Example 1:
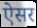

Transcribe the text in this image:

ऐसर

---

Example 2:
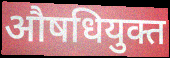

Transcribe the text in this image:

औषधियुक्त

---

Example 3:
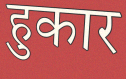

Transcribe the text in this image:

हुकार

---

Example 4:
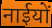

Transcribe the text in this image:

नाईयों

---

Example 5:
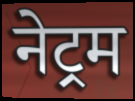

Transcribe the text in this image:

नेट्रम